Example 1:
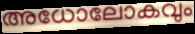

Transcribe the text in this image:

അധോലോകവും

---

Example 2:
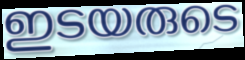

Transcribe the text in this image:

ഇടയരുടെ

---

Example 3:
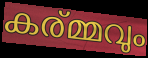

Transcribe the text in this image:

കര്മ്മവും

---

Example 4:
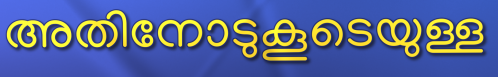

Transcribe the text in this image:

അതിനോടുകൂടെയുള്ള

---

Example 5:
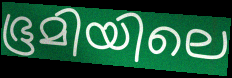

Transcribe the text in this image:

ഭൂമിയിലെ